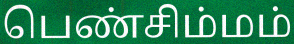
பெண்சிம்மம்